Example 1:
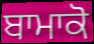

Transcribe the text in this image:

ਬਾਮਾਕੋ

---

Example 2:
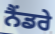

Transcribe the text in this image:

ਨੈਂਡਰੇ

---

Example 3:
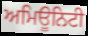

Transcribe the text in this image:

ਅਮਿਊਨਿਟੀ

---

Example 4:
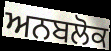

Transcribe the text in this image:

ਅਨਬਲੋਕ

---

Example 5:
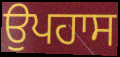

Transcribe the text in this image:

ਉਪਹਾਸ